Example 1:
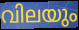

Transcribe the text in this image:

വിലയും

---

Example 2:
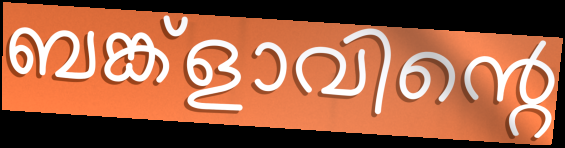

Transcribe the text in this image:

ബങ്ക്ളാവിന്റെ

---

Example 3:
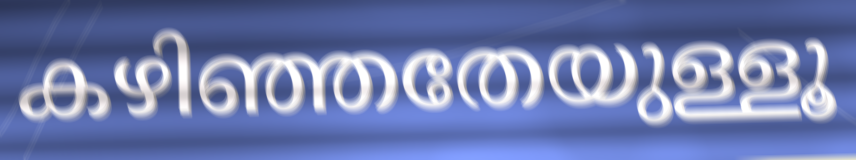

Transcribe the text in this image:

കഴിഞ്ഞതേയുള്ളൂ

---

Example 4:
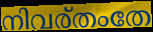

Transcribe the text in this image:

നിവര്തംതേ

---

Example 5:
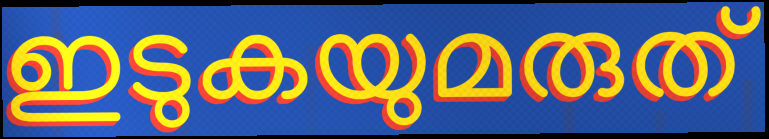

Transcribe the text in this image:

ഇടുകയുമരുത്